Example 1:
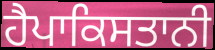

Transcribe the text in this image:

ਹੈਪਾਕਿਸਤਾਨੀ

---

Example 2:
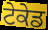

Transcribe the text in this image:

ਟੇਕੇਡ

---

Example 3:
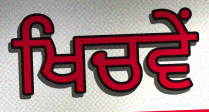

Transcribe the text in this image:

ਖਿਚਵੇਂ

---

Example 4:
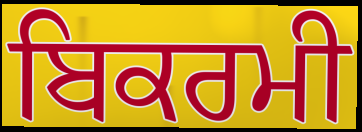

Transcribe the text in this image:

ਬਿਕਰਮੀ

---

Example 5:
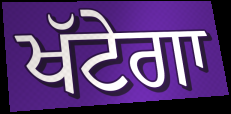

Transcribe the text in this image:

ਖੱਟੇਗਾ